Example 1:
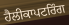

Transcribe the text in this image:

ਹੈਲੀਕਾਪਟਰਿੰਗ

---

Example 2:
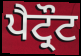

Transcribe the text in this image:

ਪੈਟ੍ਰੌਟ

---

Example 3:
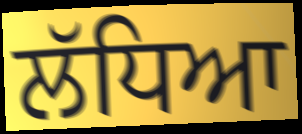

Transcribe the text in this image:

ਲੱਧਿਆ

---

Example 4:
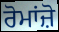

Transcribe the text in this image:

ਰੋਮਾਂਜ਼ੋ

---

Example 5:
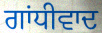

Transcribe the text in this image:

ਗਾਂਧੀਵਾਦ